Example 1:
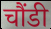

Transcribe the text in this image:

चौंडी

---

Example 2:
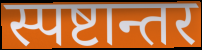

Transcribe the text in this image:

स्पष्टान्तर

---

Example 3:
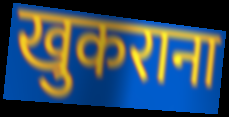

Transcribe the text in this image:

खुकराना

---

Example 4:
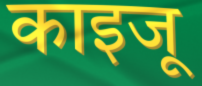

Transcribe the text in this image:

काइजू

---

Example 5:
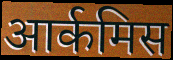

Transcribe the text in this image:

आर्कमिस